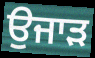
ਉਜਾੜ